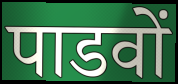
पाडवों